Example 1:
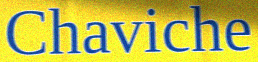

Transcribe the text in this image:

Chaviche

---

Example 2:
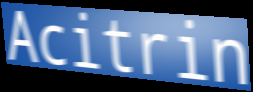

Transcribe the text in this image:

Acitrin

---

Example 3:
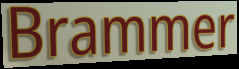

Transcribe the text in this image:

Brammer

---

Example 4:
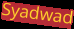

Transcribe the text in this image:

Syadwad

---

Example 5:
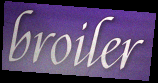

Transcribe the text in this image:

broiler